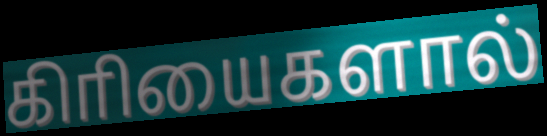
கிரியைகளால்